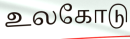
உலகோடு